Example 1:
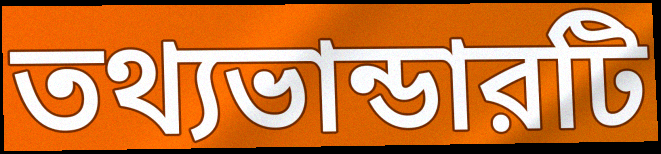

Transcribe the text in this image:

তথ্যভান্ডারটি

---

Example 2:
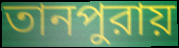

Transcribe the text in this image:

তানপুরায়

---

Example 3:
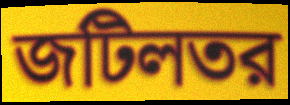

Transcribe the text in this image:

জটিলতর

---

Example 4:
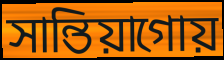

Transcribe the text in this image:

সান্তিয়াগোয়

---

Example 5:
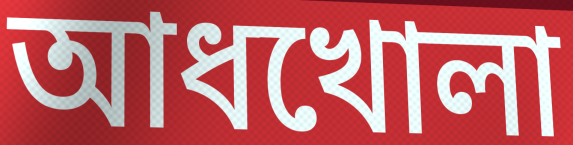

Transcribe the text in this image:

আধখোলা